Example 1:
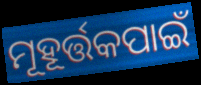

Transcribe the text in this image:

ମୂହୂର୍ତ୍ତକପାଇଁ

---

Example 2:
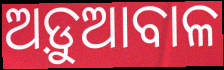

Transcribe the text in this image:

ଅଡ଼ୁଆବାଳ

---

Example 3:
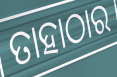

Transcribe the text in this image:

ତାହାଠାର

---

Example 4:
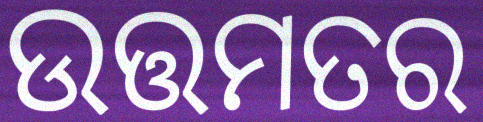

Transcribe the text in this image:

ଉତ୍ତମତର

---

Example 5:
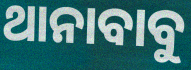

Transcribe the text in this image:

ଥାନାବାବୁ